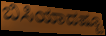
ಬಿಸಿಯಾದಷ್ಟೂ